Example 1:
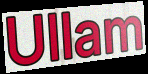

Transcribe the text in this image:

Ullam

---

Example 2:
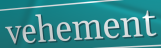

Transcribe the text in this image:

vehement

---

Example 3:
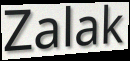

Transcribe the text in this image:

Zalak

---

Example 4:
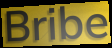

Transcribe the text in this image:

Bribe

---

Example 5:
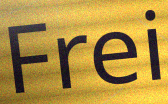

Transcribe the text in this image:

Frei